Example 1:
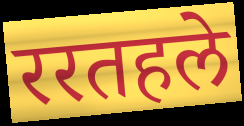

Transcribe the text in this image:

ररतहले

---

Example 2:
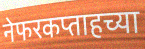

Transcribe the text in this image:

नेफरकप्ताहच्या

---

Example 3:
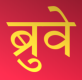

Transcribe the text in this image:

ब्रुवे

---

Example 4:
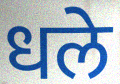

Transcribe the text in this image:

धले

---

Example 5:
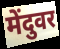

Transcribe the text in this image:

मेंदुवर